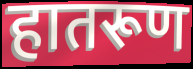
हातरूण